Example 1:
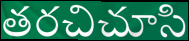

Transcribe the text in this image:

తరచిచూసి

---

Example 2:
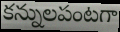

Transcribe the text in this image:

కన్నులపంటగా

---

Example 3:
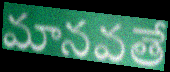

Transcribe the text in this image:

మానవతే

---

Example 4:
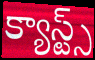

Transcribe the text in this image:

క్యాస్ట్స్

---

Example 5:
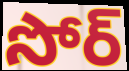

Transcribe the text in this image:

సోర్